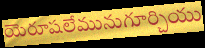
యెరూషలేమునుగూర్చియు